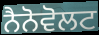
ਨੈਨੋਵੋਲਟ